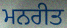
ਮਨਰੀਤ